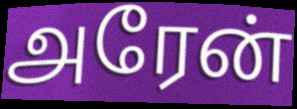
அரேன்